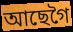
আছেগৈ